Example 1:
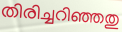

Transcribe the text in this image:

തിരിച്ചറിഞ്ഞതു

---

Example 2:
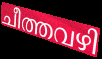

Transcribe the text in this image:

ചീത്തവഴി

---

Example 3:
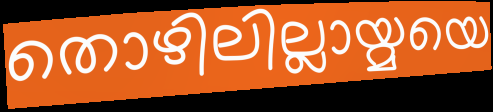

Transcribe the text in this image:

തൊഴിലില്ലായ്മയെ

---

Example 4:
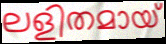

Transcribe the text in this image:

ലളിതമായ്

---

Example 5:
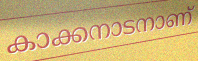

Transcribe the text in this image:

കാക്കനാടനാണ്